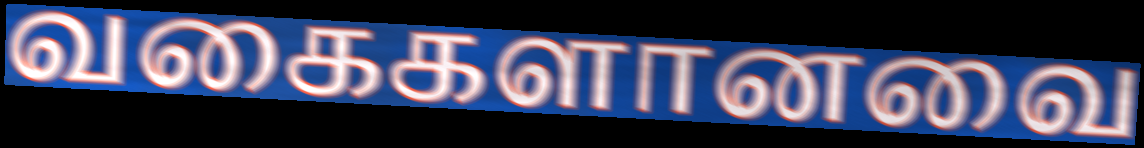
வகைகளானவை